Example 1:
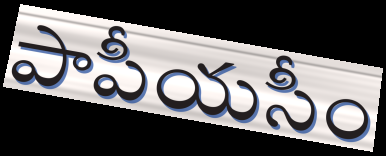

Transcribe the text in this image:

పాపీయసీం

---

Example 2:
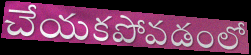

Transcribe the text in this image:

చేయకపోవడంలో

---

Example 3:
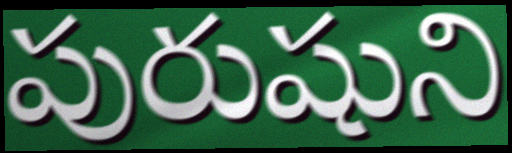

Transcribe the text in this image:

పురుషుని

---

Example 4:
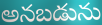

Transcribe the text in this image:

అనబడును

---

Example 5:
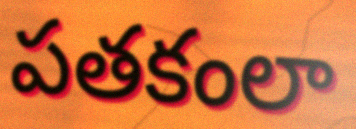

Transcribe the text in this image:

పతకంలా